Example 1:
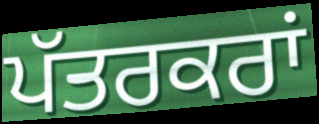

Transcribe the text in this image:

ਪੱਤਰਕਰਾਂ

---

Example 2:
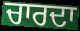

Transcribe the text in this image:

ਚਾਰਦਾ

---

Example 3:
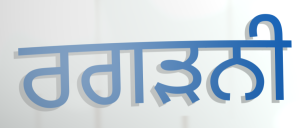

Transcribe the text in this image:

ਰਗੜਨੀ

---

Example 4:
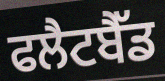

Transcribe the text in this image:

ਫਲੈਟਬੈੱਡ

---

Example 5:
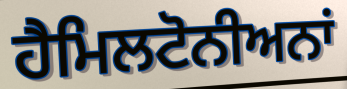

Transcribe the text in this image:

ਹੈਮਿਲਟੋਨੀਅਨਾਂ